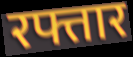
रफ्तार